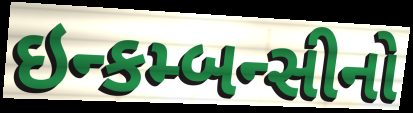
ઇન્કમ્બન્સીનો